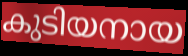
കുടിയനായ